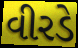
વીરડે